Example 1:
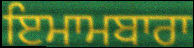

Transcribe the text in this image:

ਇਮਾਮਬਾਰਾ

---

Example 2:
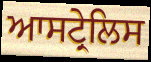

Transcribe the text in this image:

ਆਸਟ੍ਰੇਲਿਸ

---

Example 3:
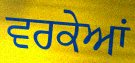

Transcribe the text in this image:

ਵਰਕੇਆਂ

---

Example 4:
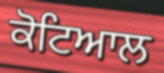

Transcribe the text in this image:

ਕੋਟਿਆਲ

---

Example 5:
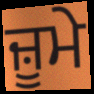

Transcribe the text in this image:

ਜ਼ੂਮੇ